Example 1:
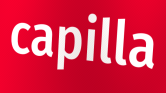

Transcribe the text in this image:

capilla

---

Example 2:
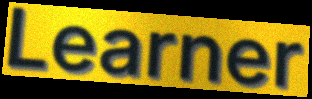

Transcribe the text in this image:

Learner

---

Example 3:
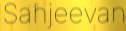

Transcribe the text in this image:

Sahjeevan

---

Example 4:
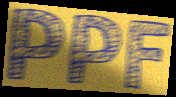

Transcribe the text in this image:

PPF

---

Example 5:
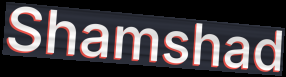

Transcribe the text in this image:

Shamshad